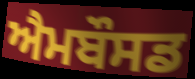
ਐਮਬੌਸਡ